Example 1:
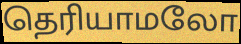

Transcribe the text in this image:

தெரியாமலோ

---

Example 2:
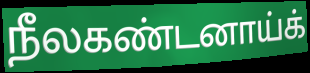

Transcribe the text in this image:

நீலகண்டனாய்க்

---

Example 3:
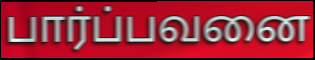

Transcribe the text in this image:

பார்ப்பவனை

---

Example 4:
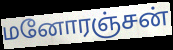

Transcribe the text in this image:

மனோரஞ்சன்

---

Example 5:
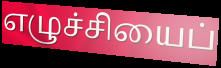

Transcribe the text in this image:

எழுச்சியைப்